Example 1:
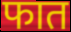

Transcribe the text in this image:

फात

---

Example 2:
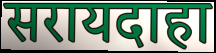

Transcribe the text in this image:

सरायदाहा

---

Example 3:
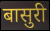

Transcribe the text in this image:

बासुरी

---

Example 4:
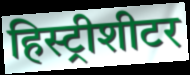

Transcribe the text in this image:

हिस्‍ट्रीशीटर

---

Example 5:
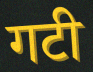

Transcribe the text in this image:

गटी